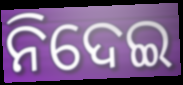
ନିଦେଇ